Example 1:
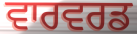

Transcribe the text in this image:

ਵਾਰਵਰਡ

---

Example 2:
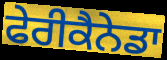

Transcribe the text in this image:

ਫੇਰੀਕੈਨੇਡਾ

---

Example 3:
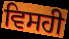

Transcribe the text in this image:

ਵਿਸਹੀ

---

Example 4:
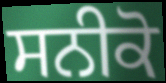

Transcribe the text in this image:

ਸਨੀਕੋ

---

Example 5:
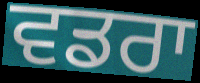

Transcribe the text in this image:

ਵਡਰਾ